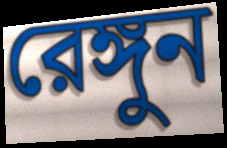
রেঙ্গুন